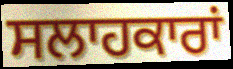
ਸਲਾਹਕਾਰਾਂ